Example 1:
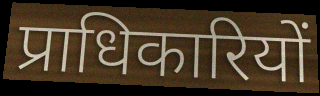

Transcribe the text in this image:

प्राधिकारियों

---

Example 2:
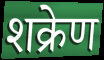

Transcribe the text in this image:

शक्रेण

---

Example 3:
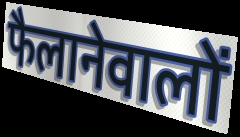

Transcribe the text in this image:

फैलानेवालों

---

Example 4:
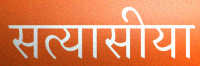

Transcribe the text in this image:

सत्यासीया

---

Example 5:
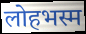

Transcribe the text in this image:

लोहभस्म